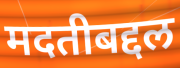
मदतीबद्दल